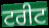
ਟਰੀਟ